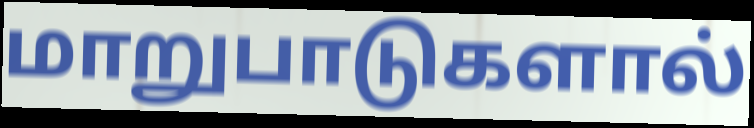
மாறுபாடுகளால்